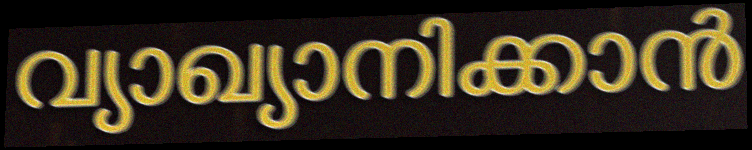
വ്യാഖ്യാനിക്കാൻ